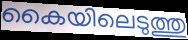
കൈയിലെടുത്തു